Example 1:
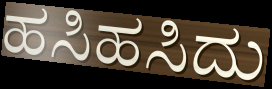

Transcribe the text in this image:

ಹಸಿಹಸಿದು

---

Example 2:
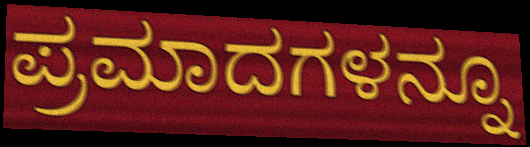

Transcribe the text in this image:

ಪ್ರಮಾದಗಳನ್ನೂ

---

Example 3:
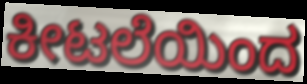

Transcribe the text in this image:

ಕೀಟಲೆಯಿಂದ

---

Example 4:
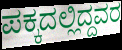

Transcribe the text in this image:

ಪಕ್ಕದಲ್ಲಿದ್ದವರ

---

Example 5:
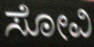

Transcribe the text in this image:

ಸೋವಿ